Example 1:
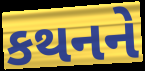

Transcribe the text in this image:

કથનને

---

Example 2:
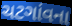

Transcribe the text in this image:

ચટગાંવના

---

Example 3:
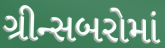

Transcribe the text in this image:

ગ્રીન્સબરોમાં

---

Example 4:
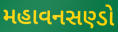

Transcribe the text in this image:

મહાવનસણ્ડો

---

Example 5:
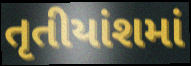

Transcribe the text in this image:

તૃતીયાંશમાં